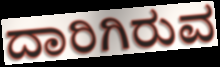
ದಾರಿಗಿರುವ